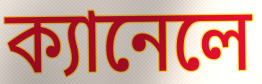
ক্যানেলে